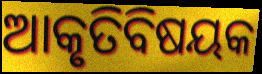
ଆକୃତିବିଷୟକ